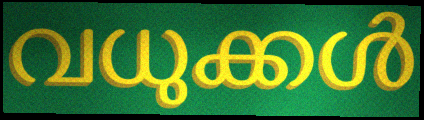
വധുക്കൾ